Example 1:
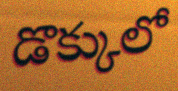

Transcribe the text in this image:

డొక్కులో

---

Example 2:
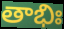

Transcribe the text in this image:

తాభిః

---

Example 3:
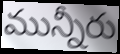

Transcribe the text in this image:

మున్నీరు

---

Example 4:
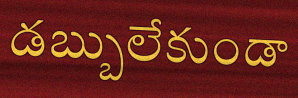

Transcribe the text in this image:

డబ్బులేకుండా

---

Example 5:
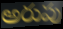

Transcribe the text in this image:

అరుపు